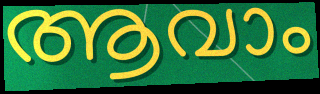
ആവാം